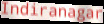
Indiranagar